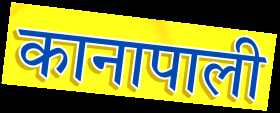
कानापाली